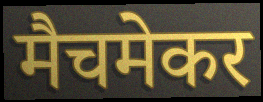
मैचमेकर